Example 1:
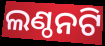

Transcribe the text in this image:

ଲଣ୍ଠନଟି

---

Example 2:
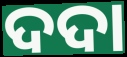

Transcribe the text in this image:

ଦଦା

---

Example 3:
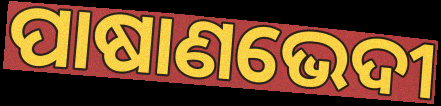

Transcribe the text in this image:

ପାଷାଣଭେଦୀ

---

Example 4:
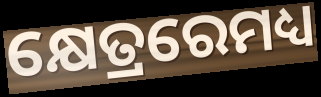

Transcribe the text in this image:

କ୍ଷେତ୍ରରେମଧ୍ୟ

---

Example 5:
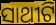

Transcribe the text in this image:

ସାଥୀଟି